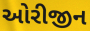
ઓરીજીન